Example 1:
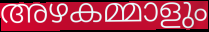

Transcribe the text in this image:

അഴകമ്മാളും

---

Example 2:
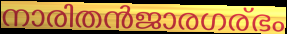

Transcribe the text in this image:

നാരിതൻജാരഗര്ഭം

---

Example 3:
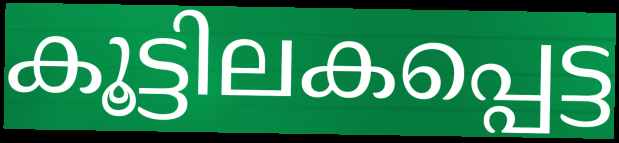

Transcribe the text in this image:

കൂട്ടിലകപ്പെട്ട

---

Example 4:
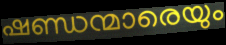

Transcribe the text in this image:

ഷണ്ഡന്മാരെയും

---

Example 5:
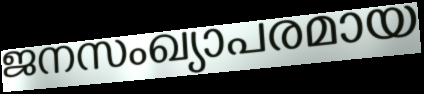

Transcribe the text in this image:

ജനസംഖ്യാപരമായ